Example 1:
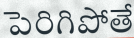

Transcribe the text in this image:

పెరిగిపోతే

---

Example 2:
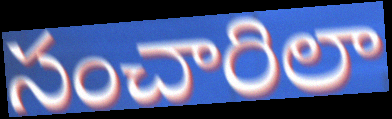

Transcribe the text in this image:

సంచారిలా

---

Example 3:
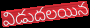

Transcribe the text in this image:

విడుదలయిన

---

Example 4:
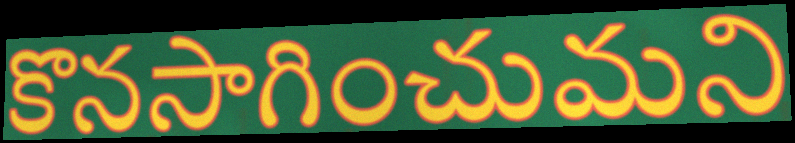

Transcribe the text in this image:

కొనసాగించుమని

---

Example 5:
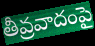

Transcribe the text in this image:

తీవ్రవాదంపై